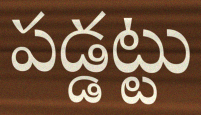
పడ్డట్టు